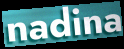
nadina